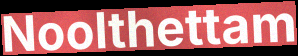
Noolthettam